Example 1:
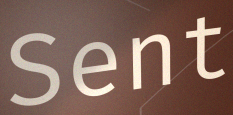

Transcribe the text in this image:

Sent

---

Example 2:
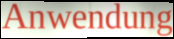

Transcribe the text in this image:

Anwendung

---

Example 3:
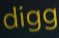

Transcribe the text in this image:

digg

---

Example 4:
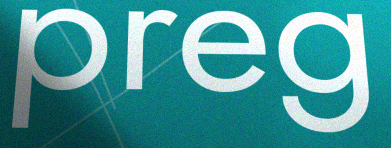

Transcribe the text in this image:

preg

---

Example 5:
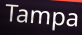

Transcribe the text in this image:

Tampa